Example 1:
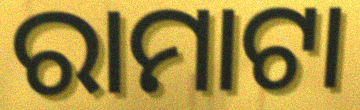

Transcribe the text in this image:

ରାମାଟା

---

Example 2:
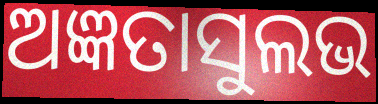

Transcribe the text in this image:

ଅଜ୍ଞତାସୁଲଭ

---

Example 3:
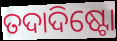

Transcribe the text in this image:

ତଦାଦିଷ୍ଟୋ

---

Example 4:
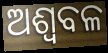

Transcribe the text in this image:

ଅଶ୍ୱବଳ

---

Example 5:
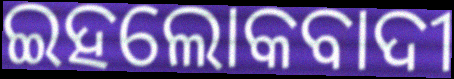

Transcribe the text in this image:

ଇହଲୋକବାଦୀ